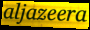
aljazeera